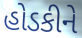
હોડકીને